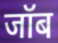
जॉब